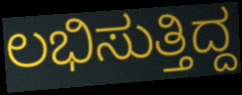
ಲಭಿಸುತ್ತಿದ್ದ